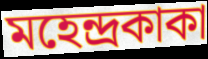
মহেন্দ্রকাকা